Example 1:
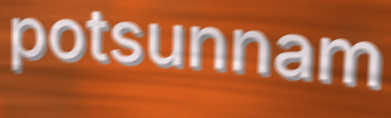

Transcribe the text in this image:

potsunnam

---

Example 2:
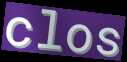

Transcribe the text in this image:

clos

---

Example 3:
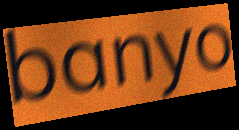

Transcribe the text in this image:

banyo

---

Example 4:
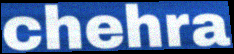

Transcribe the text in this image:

chehra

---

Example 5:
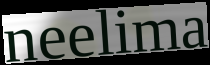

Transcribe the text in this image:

neelima